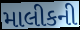
માલીકની